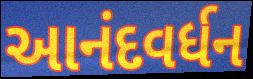
આનંદવર્ધન